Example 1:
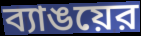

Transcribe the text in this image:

ব্যাঙয়ের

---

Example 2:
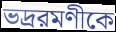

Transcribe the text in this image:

ভদ্ররমণীকে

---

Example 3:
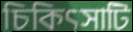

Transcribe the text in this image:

চিকিৎসাটি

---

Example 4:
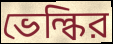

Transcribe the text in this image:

ভেল্কির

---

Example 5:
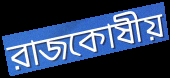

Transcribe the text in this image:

রাজকোষীয়